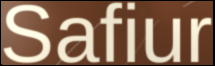
Safiur